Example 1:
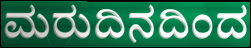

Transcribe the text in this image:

ಮರುದಿನದಿಂದ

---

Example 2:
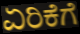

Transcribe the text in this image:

ಏರಿಕೆಗೆ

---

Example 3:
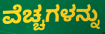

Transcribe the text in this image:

ವೆಚ್ಚಗಳನ್ನು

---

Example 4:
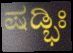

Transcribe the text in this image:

ಷಡ್ಭಿಃ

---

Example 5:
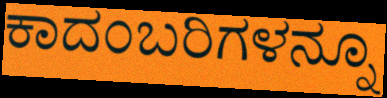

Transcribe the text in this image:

ಕಾದಂಬರಿಗಳನ್ನೂ